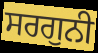
ਸਰਗੁਨੀ